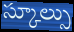
స్కూల్సు